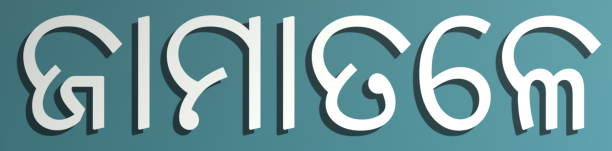
ଜାମାତଳେ